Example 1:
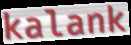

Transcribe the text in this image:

kalank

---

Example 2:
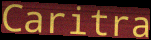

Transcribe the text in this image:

Caritra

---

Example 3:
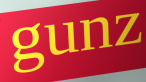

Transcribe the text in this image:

gunz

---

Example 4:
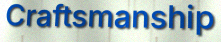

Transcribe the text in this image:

Craftsmanship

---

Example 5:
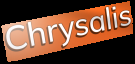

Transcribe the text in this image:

Chrysalis